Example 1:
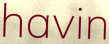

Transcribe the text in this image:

havin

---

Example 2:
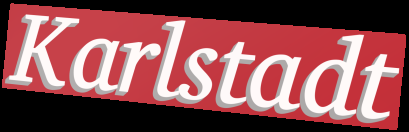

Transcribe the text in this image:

Karlstadt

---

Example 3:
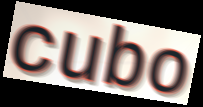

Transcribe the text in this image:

cubo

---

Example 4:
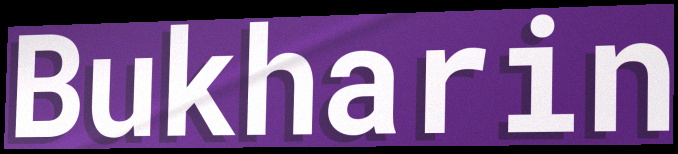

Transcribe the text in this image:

Bukharin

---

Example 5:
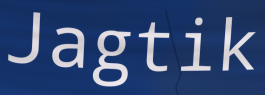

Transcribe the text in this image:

Jagtik